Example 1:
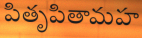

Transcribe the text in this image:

పితృపితామహ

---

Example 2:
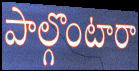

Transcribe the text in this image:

పాల్గొంటారా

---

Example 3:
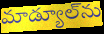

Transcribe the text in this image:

మాడ్యూల్‌ను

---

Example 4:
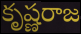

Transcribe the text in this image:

కృష్ణరాజ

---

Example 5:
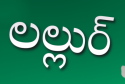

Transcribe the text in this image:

లల్లుర్